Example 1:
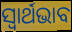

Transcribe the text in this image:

ସ୍ଵାର୍ଥଭାବ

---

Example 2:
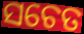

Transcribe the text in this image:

ସଚେତ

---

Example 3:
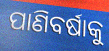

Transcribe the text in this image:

ପାଣିବର୍ଷାକୁ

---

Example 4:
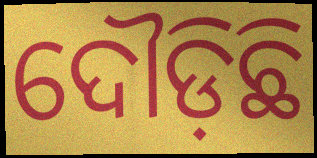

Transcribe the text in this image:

ଦୌଡ଼ିଛି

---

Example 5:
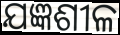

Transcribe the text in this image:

ଯଜ୍ଞଶୀଳ